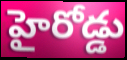
హైరోడ్డు